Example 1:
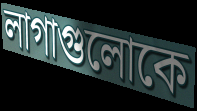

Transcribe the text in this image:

লাগাগুলোকে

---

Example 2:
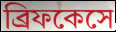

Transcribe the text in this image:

ব্রিফকেসে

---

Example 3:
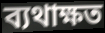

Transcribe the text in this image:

ব্যথাক্ষত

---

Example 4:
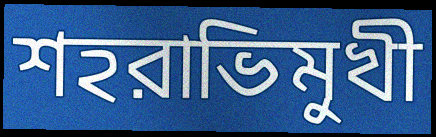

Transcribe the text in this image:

শহরাভিমুখী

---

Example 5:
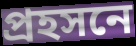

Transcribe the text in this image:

প্রহসনে